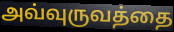
அவ்வுருவத்தை